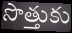
సొత్తుకు